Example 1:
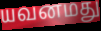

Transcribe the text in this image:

யவனமது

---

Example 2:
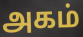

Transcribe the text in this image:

அகம்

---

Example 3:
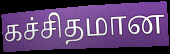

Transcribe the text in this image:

கச்சிதமான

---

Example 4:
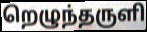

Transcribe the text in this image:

றெழுந்தருளி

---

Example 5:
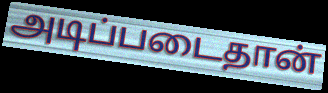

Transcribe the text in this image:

அடிப்படைதான்